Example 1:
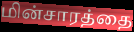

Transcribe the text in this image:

மின்சாரத்தை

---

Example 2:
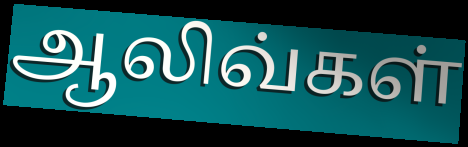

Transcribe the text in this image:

ஆலிவ்கள்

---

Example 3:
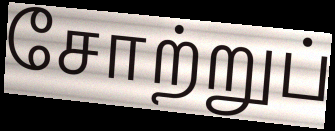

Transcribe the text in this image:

சோற்றுப்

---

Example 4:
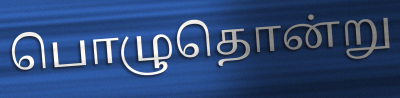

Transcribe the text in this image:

பொழுதொன்று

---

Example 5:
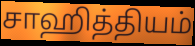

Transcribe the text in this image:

சாஹித்தியம்